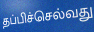
தப்பிச்செல்வது